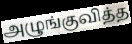
அழுங்குவித்த